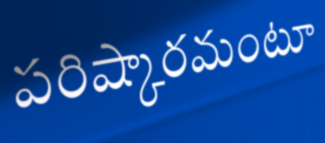
పరిష్కారమంటూ